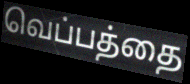
வெப்பத்தை